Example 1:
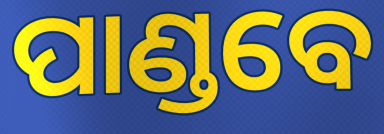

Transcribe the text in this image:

ପାଣ୍ଡବେ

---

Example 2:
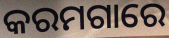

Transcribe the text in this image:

କରମଗାରେ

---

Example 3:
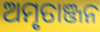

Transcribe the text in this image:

ଅମୃତାଞ୍ଜନ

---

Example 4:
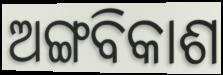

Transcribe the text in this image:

ଅଙ୍ଗବିକାଶ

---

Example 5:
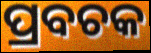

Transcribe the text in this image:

ପ୍ରବଚକ